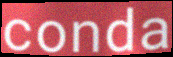
conda